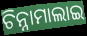
ଚିନ୍ନାମାଲାଇ